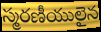
స్మరణీయులైన